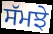
ਸੱਮਝੇ